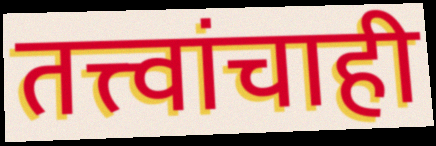
तत्त्वांचाही